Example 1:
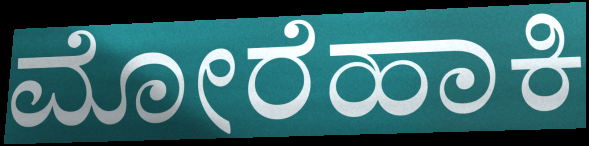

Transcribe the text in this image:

ಮೋರೆಹಾಕಿ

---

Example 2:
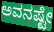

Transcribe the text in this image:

ಅವನಷ್ಟೇ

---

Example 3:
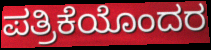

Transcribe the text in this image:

ಪತ್ರಿಕೆಯೊಂದರ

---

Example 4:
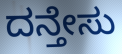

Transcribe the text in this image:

ದನ್ತೇಸು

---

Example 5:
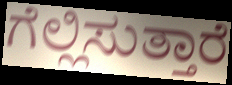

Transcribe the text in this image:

ಗೆಲ್ಲಿಸುತ್ತಾರೆ